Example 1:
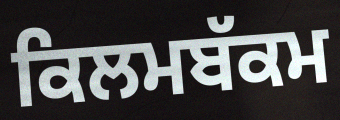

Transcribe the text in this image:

ਕਿਲਮਬੱਕਮ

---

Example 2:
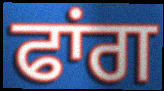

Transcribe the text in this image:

ਫਾਂਗ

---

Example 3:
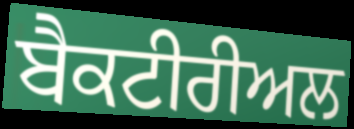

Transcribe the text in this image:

ਬੈਕਟੀਰੀਅਲ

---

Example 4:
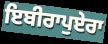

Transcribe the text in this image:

ਇਬੀਰਾਪੁਏਰਾ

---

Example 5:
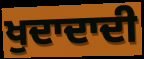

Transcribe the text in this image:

ਖੁਦਾਦਾਦੀ